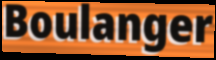
Boulanger